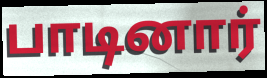
பாடினார்